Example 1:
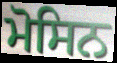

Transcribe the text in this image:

ਮੋਸਿਨ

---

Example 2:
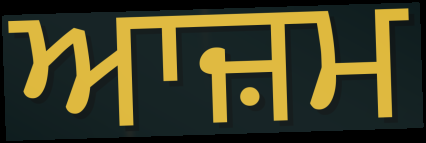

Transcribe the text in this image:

ਆਜ਼ਮ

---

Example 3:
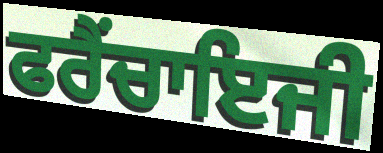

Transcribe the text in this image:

ਫਰੈਂਚਾਇਜੀ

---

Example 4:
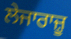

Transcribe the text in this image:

ਲੇਜਾਰਾਜ਼ੂ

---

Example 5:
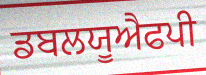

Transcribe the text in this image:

ਡਬਲਯੂਐਫਪੀ